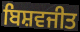
ਬਿਸ਼ਵਜੀਤ